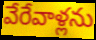
వేరేవాళ్లను